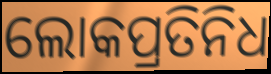
ଲୋକପ୍ରତିନିଧ